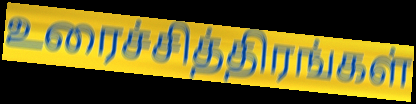
உரைச்சித்திரங்கள்